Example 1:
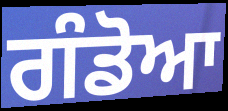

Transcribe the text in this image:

ਗੰਡੋਆ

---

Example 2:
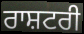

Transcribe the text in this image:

ਰਾਸ਼ਟਰੀ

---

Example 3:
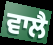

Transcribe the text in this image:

ਵਾਲੈ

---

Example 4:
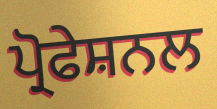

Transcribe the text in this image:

ਪ੍ਰੋਫੇਸ਼ਨਲ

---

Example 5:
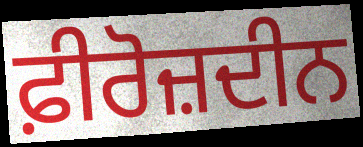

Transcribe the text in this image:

ਫ਼ੀਰੋਜ਼ਦੀਨ